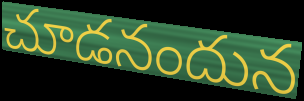
చూడనందున